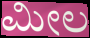
ಮೀಲ